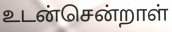
உடன்சென்றாள்